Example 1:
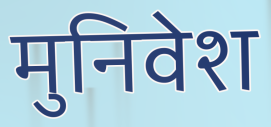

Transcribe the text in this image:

मुनिवेश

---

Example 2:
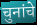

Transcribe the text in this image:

चुनांचे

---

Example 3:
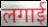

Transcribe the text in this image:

लगाई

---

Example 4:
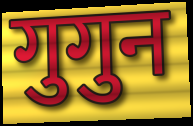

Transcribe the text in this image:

गुगुन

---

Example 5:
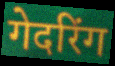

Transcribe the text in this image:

गेदरिंग